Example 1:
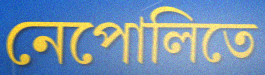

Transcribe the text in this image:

নেপোলিতে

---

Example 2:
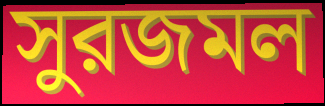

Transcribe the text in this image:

সুরজমল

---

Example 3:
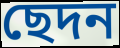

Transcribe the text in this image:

ছেদন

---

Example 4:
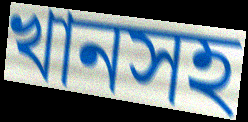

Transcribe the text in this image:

খানসহ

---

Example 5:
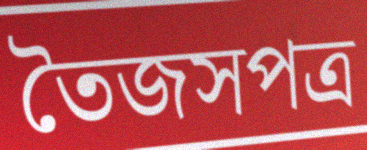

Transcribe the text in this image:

তৈজসপত্র